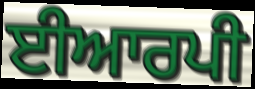
ਈਆਰਪੀ